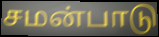
சமன்பாடு